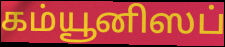
கம்யூனிஸப்